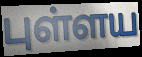
புள்ளய